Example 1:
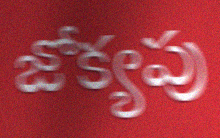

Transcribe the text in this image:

జోక్యపు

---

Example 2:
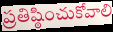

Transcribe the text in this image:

ప్రతిష్ఠించుకోవాలి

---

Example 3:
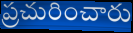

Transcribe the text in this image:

ప్రచురించారు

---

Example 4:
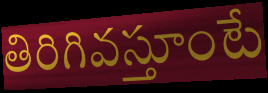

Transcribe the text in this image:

తిరిగివస్తూంటే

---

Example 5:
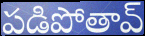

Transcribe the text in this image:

పడిపోతావ్